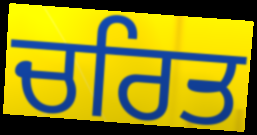
ਚਰਿਤ